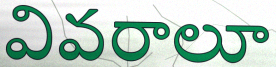
వివరాలూ